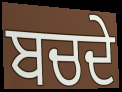
ਬਚਦੇ